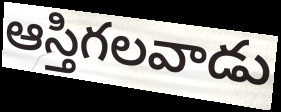
ఆస్తిగలవాడు